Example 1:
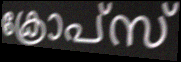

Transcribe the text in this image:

ക്രോപ്സ്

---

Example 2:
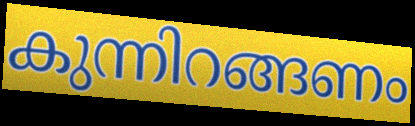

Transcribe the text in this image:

കുന്നിറങ്ങണം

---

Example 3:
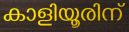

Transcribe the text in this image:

കാളിയൂരിന്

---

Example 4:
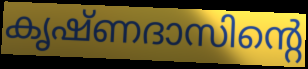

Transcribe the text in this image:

കൃഷ്ണദാസിന്റെ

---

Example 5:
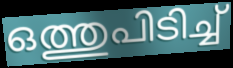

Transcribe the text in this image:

ഒത്തുപിടിച്ച്